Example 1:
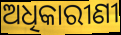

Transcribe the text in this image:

ଅଧିକାରୀଣୀ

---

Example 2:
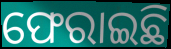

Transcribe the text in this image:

ଫେରାଇଛି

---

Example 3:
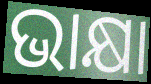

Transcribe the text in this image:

ଭାକ୍ଷା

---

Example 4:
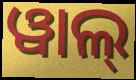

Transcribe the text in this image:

ୱାଲ୍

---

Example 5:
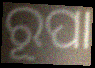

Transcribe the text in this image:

ରୂପା